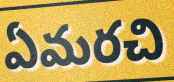
ఏమరచి